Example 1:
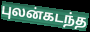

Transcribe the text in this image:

புலன்கடந்த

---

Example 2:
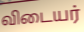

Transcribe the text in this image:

விடையர்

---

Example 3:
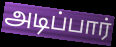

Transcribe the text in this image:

அடிப்பார்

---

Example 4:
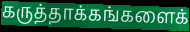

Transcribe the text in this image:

கருத்தாக்கங்களைக்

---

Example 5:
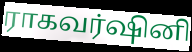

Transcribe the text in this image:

ராகவர்ஷினி